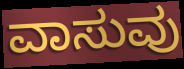
ವಾಸುವು